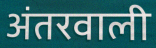
अंतरवाली